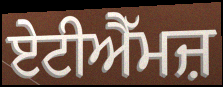
ਏਟੀਐੱਮਜ਼